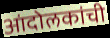
आंदोलकांची